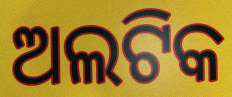
ଅଲଟିକ